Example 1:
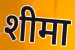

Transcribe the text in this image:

शीमा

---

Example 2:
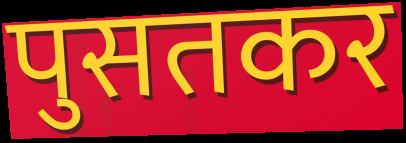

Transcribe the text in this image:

पुसतकर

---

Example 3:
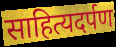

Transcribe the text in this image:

साहित्यदर्पण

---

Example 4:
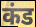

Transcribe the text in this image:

कंड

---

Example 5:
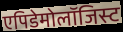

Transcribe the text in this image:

एपिडेमोलॉजिस्ट